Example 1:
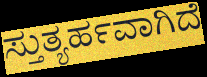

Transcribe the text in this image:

ಸ್ತುತ್ಯರ್ಹವಾಗಿದೆ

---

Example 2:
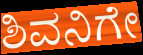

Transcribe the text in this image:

ಶಿವನಿಗೇ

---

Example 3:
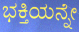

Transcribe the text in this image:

ಭಕ್ತಿಯನ್ನೇ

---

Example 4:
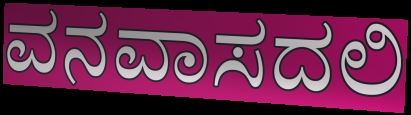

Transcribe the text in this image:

ವನವಾಸದಲಿ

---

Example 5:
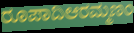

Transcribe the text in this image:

ರೂಪಾದಿಆರಮ್ಮಣಂ